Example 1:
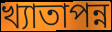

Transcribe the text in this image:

খ্যাতাপন্ন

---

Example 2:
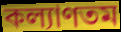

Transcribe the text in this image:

কল্যাণতম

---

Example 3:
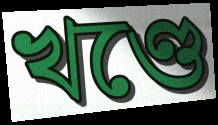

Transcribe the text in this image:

খণ্ডে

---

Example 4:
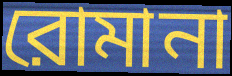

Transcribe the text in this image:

রোমানা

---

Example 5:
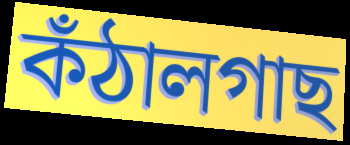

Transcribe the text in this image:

কঁঠালগাছ